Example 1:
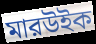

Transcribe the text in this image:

মারউইক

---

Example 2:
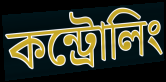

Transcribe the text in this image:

কন্ট্রোলিং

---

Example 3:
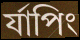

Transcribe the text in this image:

র্যাপিং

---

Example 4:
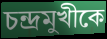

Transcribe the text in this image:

চন্দ্রমুখীকে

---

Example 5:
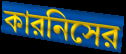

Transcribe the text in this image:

কারনিসের